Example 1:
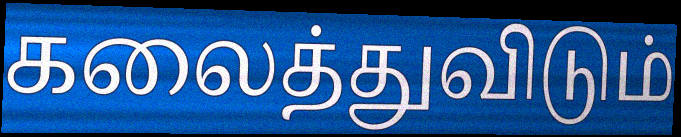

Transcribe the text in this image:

கலைத்துவிடும்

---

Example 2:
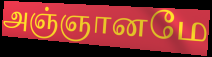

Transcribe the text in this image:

அஞ்ஞானமே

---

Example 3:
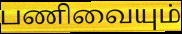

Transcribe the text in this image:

பணிவையும்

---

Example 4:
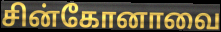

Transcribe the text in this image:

சின்கோனாவை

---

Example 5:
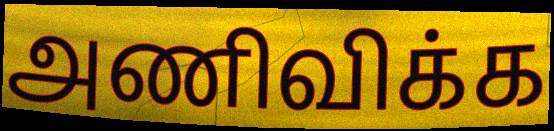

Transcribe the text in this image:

அணிவிக்க